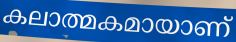
കലാത്മകമായാണ്